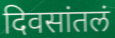
दिवसांतलं